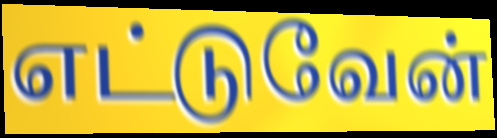
எட்டுவேன்